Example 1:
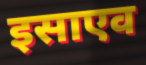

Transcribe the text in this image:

इसाएव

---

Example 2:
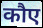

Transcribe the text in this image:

कौए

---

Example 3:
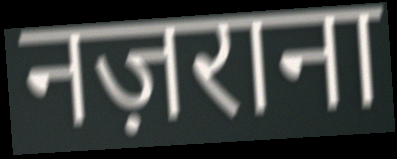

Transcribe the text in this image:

नज़राना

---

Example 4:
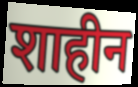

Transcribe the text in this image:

शाहीन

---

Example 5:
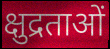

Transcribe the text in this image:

क्षुद्रताओं